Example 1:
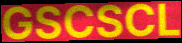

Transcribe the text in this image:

GSCSCL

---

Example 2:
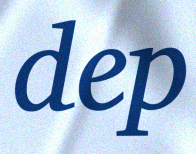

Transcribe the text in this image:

dep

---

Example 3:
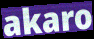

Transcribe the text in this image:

akaro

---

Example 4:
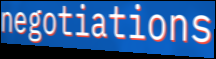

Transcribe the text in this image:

negotiations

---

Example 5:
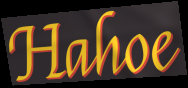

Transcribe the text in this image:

Hahoe